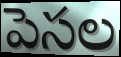
పెసల